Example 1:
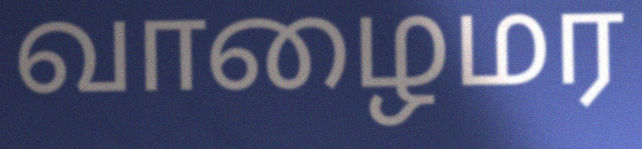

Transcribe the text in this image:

வாழைமர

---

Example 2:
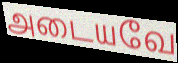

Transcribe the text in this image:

அடையவே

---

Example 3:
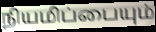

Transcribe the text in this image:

நியமிப்பையும்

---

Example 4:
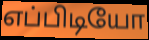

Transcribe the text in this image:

எப்பிடியோ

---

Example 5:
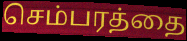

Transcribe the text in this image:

செம்பரத்தை